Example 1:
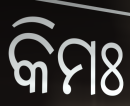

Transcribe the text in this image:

କିମଃ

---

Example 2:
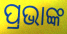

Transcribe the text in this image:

ପ୍ରଭାଙ୍କ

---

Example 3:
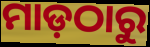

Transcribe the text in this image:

ମାଡ଼ଠାରୁ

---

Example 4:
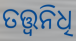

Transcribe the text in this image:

ତତ୍ତ୍ଵନିଧି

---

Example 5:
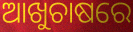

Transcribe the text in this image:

ଆଖୁଚାଷରେ